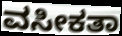
ವಸೀಕತಾ